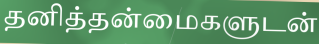
தனித்தன்மைகளுடன்